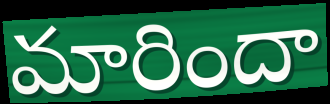
మారిందా